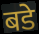
बडे